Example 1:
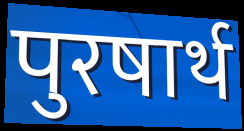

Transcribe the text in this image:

पुरषार्थ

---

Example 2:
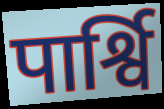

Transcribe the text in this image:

पार्श्वि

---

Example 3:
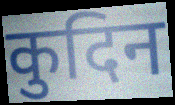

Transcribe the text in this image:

कुदिन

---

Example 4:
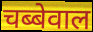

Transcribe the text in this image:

चब्बेवाल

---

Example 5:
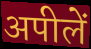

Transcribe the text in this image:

अपीलें